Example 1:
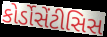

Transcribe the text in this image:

કોર્ડોસેંટીસિસ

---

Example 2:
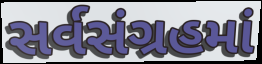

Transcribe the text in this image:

સર્વસંગ્રહમાં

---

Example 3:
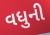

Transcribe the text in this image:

વધુની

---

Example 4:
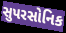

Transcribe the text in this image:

સુપરસોનિક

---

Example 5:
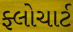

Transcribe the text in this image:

ફ્લોચાર્ટ